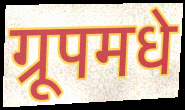
ग्रूपमधे